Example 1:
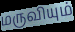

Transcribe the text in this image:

மருவியும்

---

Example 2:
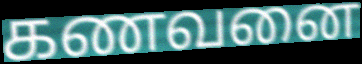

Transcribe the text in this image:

கணவனை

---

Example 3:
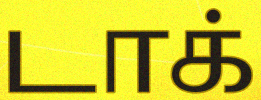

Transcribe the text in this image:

டாக்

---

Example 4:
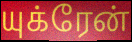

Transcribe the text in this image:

யுக்ரேன்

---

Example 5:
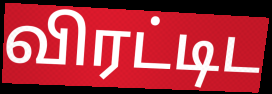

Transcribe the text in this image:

விரட்டிட